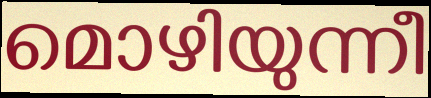
മൊഴിയുന്നീ